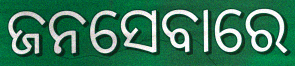
ଜନସେବାରେ